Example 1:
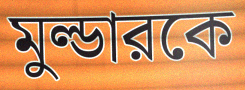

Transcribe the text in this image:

মুল্ডারকে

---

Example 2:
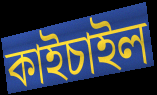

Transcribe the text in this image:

কাইচাইল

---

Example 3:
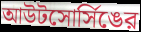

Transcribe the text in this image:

আউটসোর্সিঙের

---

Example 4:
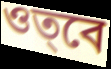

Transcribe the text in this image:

ওত্‌বে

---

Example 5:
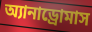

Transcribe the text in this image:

অ্যানাড্রোমাস